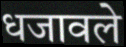
धजावले